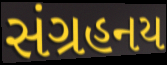
સંગ્રહનય